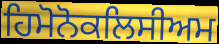
ਹਿਮੋਨੋਕਲਿਸੀਅਮ